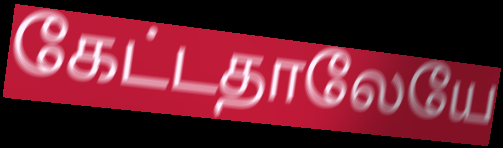
கேட்டதாலேயே